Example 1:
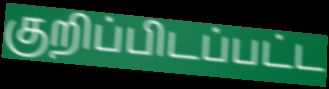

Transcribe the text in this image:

குறிப்பிடப்பட்ட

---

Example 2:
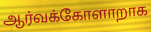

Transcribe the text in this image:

ஆர்வக்கோளாறாக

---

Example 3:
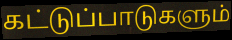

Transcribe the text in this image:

கட்டுப்பாடுகளும்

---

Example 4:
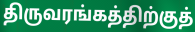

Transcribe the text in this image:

திருவரங்கத்திற்குத்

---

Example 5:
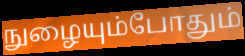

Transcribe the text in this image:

நுழையும்போதும்